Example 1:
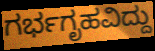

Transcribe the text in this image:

ಗರ್ಭಗೃಹವಿದ್ದು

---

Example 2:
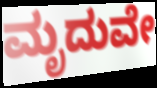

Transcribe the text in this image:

ಮೃದುವೇ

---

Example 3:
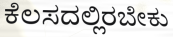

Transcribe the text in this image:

ಕೆಲಸದಲ್ಲಿರಬೇಕು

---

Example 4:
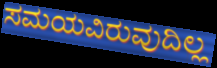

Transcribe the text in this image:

ಸಮಯವಿರುವುದಿಲ್ಲ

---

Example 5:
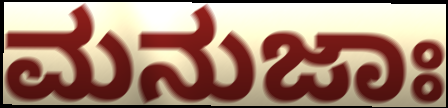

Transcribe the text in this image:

ಮನುಜಾಃ